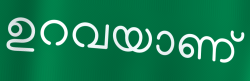
ഉറവയാണ്